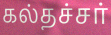
கல்தச்சர்